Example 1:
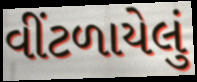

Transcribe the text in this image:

વીંટળાયેલું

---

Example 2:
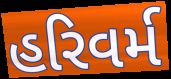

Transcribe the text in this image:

હરિવર્મ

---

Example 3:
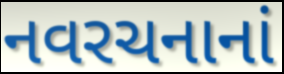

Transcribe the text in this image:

નવરચનાનાં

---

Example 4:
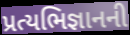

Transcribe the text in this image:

પ્રત્યભિજ્ઞાનની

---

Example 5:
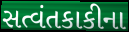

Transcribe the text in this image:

સત્વંતકાકીના